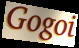
Gogoi